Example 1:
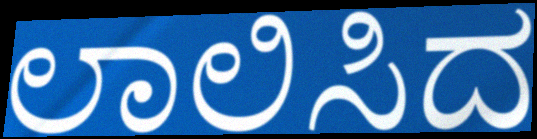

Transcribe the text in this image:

ಲಾಲಿಸಿದ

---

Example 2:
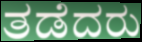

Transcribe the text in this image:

ತಡೆದರು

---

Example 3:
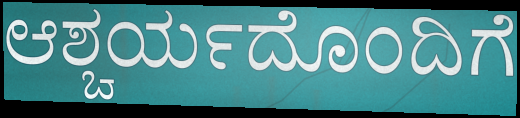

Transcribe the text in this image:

ಆಶ್ಚರ್ಯದೊಂದಿಗೆ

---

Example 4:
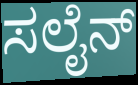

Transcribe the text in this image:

ಸಲೈನ್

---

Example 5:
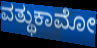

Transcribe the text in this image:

ವತ್ಥುಕಾಮೋ